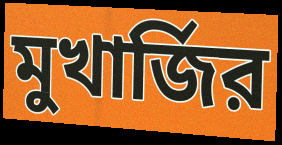
মুখার্জির